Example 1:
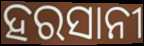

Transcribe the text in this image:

ହରସାନୀ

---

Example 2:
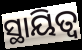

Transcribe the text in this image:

ସ୍ଥାୟିତ୍ୱ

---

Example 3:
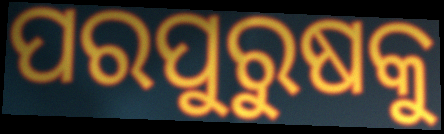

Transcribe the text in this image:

ପରପୁରୁଷକୁ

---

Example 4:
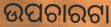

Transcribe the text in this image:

ଉପଚାରଟା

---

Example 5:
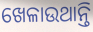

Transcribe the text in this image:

ଖେଳାଉଥାନ୍ତି